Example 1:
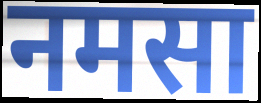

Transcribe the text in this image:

नमसा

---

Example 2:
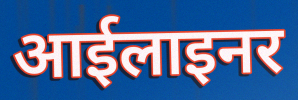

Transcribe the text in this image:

आईलाइनर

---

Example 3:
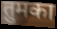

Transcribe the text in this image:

तुमका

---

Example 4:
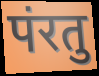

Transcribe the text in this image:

पंरतु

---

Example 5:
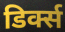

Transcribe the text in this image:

डिर्क्स